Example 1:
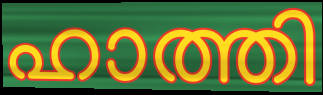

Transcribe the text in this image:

ഹാത്തി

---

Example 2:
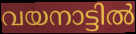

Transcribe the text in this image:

വയനാട്ടിൽ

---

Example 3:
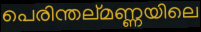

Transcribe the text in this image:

പെരിന്തല്മണ്ണയിലെ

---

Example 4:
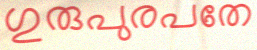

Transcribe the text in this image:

ഗുരുപുരപതേ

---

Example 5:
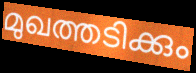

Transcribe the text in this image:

മുഖത്തടിക്കും